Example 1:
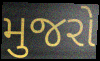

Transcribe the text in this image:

મુજરો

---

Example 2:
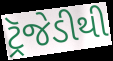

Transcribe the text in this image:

ટ્રૅજેડીથી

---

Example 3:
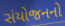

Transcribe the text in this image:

સંયોજનનો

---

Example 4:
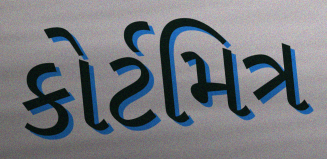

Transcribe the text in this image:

કોર્ટમિત્ર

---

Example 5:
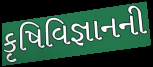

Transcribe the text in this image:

કૃષિવિજ્ઞાનની